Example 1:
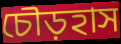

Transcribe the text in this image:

চৌড়হাস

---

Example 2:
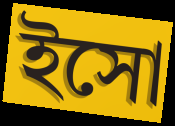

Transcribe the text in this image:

ইসো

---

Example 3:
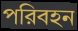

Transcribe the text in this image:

পরিবহন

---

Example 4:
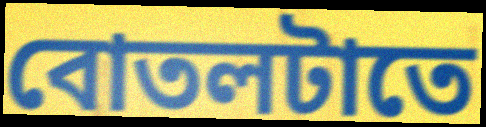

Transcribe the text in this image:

বোতলটাতে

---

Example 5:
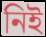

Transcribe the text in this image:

নিই